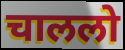
चाललो